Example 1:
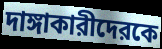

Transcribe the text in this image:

দাঙ্গাকারীদেরকে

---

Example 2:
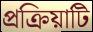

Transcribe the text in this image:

প্রক্রিয়াটি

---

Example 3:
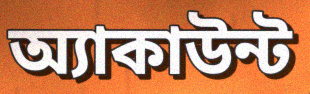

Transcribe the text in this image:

অ্যাকাউন্ট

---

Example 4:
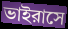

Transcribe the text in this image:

ভাইরাসে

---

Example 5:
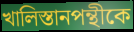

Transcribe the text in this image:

খালিস্তানপন্থীকে